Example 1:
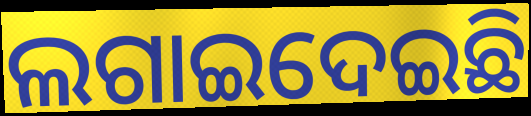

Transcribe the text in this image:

ଲଗାଇଦେଇଛି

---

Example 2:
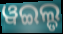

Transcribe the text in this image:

ୱଇଲ୍ଡ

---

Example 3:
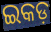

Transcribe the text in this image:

ଇକଡ଼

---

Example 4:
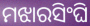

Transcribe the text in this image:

ମଝାରସିଂଘି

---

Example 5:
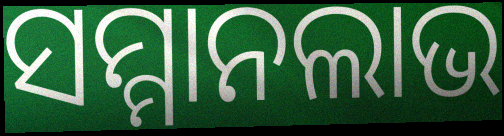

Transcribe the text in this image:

ସମ୍ମାନଲାଭ